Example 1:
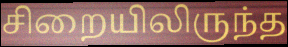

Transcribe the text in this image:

சிறையிலிருந்த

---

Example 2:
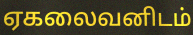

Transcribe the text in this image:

ஏகலைவனிடம்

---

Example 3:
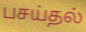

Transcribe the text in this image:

பசய்தல்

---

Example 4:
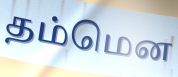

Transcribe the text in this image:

தம்மென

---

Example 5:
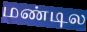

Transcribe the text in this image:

மண்டில